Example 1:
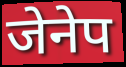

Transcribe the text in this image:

जेनेप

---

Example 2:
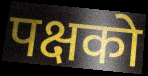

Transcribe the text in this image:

पक्षको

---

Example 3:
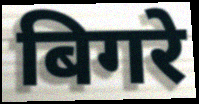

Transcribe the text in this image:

बिगरे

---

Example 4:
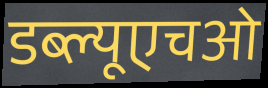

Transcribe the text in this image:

डब्ल्यूएचओ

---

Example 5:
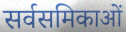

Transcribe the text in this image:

सर्वसमिकाओं